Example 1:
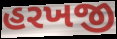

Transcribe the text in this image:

હરખજી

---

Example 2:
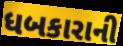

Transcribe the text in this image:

ધબકારાની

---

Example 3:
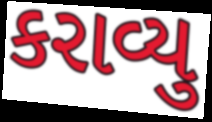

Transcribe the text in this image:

કરાવ્યુ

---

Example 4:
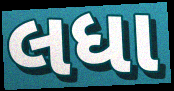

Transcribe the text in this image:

લધા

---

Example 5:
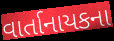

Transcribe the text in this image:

વાર્તાનાયકના